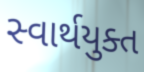
સ્વાર્થયુક્ત